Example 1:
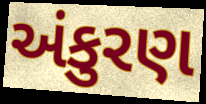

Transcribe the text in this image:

અંકુરણ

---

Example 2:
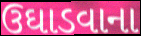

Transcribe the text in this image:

ઉઘાડવાના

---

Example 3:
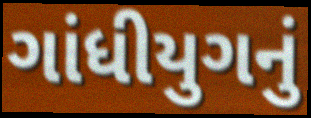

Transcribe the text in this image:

ગાંધીયુગનું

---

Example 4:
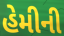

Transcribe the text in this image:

હેમીની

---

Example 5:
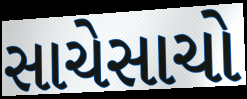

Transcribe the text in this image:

સાચેસાચો